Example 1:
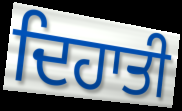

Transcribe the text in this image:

ਦਿਹਾਤੀ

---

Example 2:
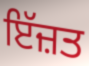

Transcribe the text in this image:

ਇੱਜ਼ਤ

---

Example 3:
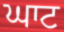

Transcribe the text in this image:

ਘਾਟ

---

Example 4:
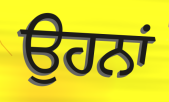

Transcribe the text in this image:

ਉਹਨਾਂ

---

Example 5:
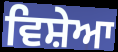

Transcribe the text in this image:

ਵਿਸ਼ੇਆ